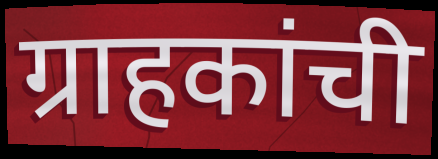
ग्राहकांची